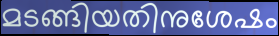
മടങ്ങിയതിനുശേഷം